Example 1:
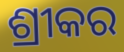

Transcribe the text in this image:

ଶ୍ରୀକର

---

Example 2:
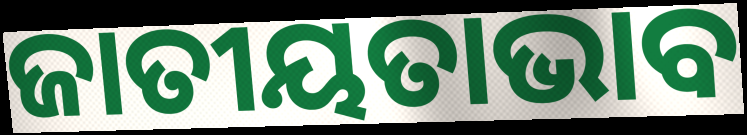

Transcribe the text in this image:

ଜାତୀୟତାଭାବ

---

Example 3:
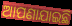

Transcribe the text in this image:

ଆପଣାଯାଇଛି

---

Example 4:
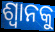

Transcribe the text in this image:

ଶ୍ଵାନକୁ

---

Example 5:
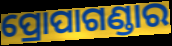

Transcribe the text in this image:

ପ୍ରୋପାଗଣ୍ଡାର